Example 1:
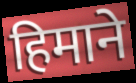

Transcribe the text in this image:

हिमाने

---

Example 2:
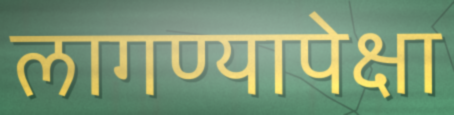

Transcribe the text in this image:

लागण्यापेक्षा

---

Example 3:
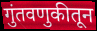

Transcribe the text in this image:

गुंतवणुकीतून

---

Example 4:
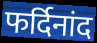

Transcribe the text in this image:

फर्दिनांद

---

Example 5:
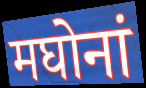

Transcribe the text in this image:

मघोनां